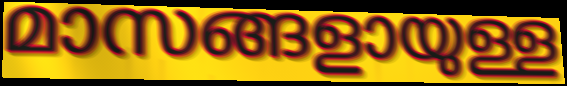
മാസങ്ങളായുള്ള